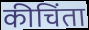
कीचिंता